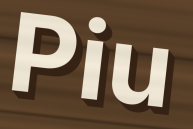
Piu